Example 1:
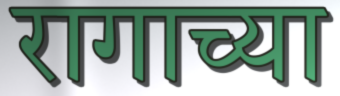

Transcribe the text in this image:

रागाच्या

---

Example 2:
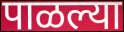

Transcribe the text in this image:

पाळल्या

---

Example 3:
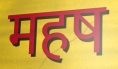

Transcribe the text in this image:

महष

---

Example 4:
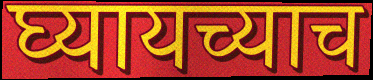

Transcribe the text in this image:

घ्यायच्याच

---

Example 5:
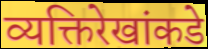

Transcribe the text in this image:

व्यक्तिरेखांकडे